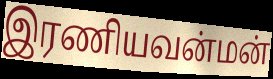
இரணியவன்மன்